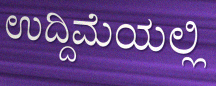
ಉದ್ದಿಮೆಯಲ್ಲಿ